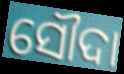
ସୌଦା